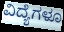
ವಿದ್ಯೆಗಳೂ